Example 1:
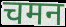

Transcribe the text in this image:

चमन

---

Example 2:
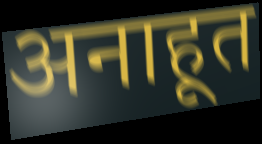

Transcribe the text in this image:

अनाहूत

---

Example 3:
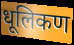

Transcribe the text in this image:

धूलिकण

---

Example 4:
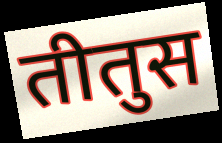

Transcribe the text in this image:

तीतुस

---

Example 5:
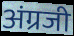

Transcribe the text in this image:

अंग्रजी